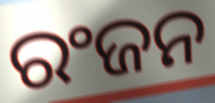
ରଂଜନ